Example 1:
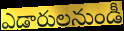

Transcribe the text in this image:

ఎడారులనుండీ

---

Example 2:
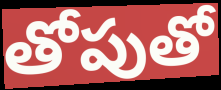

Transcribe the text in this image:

తోపుతో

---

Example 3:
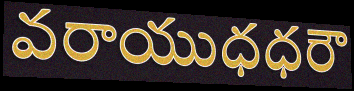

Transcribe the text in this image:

వరాయుధధరౌ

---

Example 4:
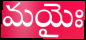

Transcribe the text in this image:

మయైః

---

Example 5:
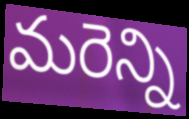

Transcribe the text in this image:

మరెన్ని